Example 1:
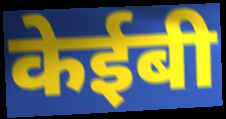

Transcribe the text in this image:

केईबी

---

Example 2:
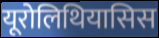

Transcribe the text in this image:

यूरोलिथियासिस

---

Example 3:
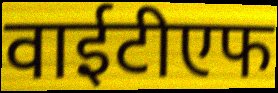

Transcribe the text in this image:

वाईटीएफ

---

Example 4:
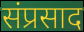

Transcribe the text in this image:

संप्रसाद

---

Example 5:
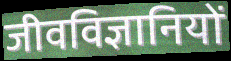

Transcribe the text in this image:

जीवविज्ञानियों